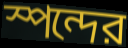
স্পন্দের